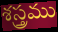
శస్త్రము